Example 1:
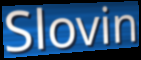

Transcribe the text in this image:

Slovin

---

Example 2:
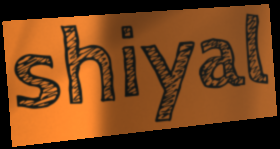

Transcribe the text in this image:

shiyal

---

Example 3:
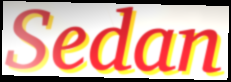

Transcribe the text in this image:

Sedan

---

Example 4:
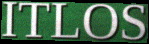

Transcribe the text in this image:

ITLOS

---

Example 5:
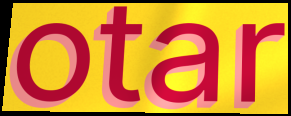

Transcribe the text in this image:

otar